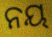
ନୟ